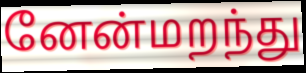
னேன்மறந்து